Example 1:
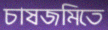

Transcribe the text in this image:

চাষজমিতে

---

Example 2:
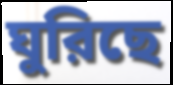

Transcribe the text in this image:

ঘুরিছে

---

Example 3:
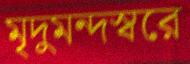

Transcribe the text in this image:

মৃদুমন্দস্বরে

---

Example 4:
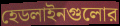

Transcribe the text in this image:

হেডলাইনগুলোর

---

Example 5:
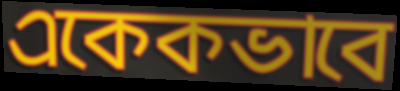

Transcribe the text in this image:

একেকভাবে